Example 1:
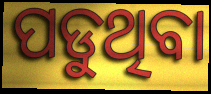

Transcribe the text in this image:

ପଡୁଥିବା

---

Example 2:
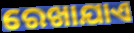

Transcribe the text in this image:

ରେଖାଯାଏ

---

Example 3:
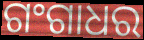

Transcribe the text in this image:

ଗଂଗାଧର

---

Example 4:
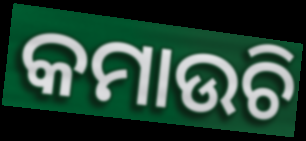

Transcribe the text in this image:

କମାଉଚି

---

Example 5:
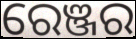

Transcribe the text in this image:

ରେଞ୍ଜର